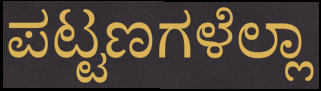
ಪಟ್ಟಣಗಳೆಲ್ಲಾ